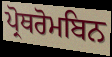
ਪ੍ਰੋਥਰੋਮਬਿਨ